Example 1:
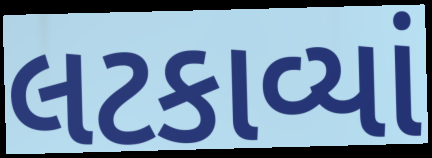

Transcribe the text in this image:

લટકાવ્યાં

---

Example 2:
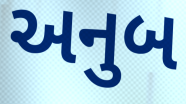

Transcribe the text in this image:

અનુબ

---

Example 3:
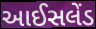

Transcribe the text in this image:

આઈસલેંડ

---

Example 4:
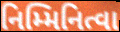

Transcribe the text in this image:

નિમ્મિનિત્વા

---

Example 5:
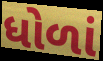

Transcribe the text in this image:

ધોળાં